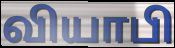
வியாபி